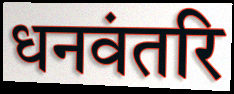
धनवंतरि